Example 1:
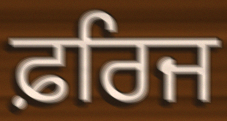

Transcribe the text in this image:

ਫ਼ਰਿਜ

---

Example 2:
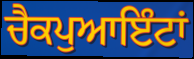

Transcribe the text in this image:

ਚੈਕਪੁਆਇੰਟਾਂ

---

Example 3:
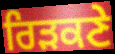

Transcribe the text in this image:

ਰਿੜਕਣੇ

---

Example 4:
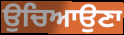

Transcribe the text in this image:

ਉਚਿਆਉਣਾ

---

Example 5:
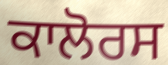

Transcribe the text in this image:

ਕਾਲੋਰਸ